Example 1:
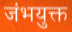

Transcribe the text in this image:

जंभयुक्त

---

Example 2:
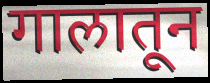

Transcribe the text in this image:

गालातून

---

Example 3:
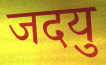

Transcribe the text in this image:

जदयु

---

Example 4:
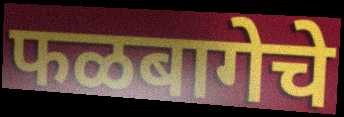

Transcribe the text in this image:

फळबागेचे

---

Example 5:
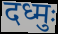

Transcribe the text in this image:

दध्मुः